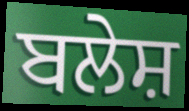
ਬਲੇਸ਼